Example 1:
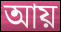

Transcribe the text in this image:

আয়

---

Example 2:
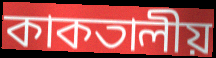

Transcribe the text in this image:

কাকতালীয়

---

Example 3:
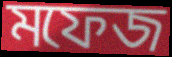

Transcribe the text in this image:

মফেজ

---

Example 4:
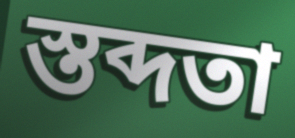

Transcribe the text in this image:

স্তব্দতা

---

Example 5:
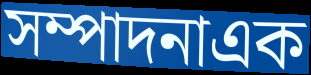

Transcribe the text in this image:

সম্পাদনাএক